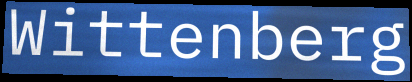
Wittenberg